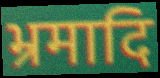
भ्रमादि